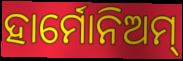
ହାର୍ମୋନିଅମ୍